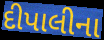
દીપાલીના